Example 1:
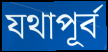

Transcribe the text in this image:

যথাপূর্ব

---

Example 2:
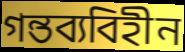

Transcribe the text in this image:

গন্তব্যবিহীন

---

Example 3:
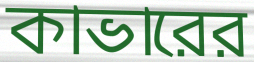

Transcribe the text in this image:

কাভারের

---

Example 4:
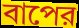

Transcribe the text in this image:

বাপের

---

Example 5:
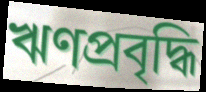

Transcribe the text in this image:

ঋণপ্রবৃদ্ধি